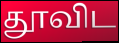
தூவிட